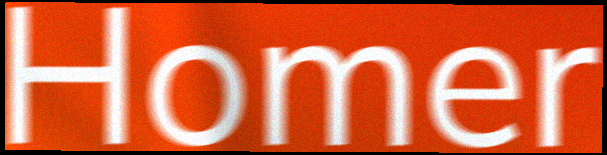
Homer